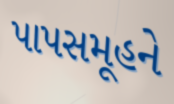
પાપસમૂહને